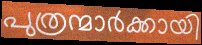
പുത്രന്മാർക്കായി